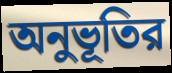
অনুভূতির